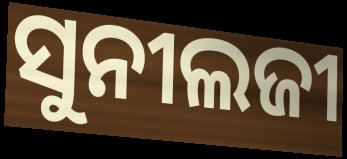
ସୁନୀଲଜୀ